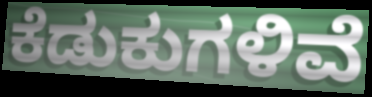
ಕೆಡುಕುಗಳಿವೆ